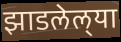
झाडलेल्या